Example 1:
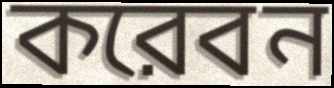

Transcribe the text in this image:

করেবন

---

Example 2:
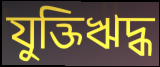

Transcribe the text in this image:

যুক্তিঋদ্ধ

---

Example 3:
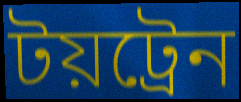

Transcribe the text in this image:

টয়ট্রেন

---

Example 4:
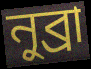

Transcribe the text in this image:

নুব্রা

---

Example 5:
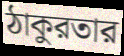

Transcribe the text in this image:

ঠাকুরতার